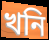
খনি